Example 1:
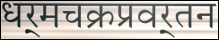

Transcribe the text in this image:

धर्मचक्रप्रवर्तन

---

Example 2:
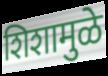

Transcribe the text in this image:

शिशामुळे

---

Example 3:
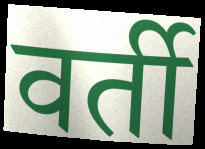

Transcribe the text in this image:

वर्ती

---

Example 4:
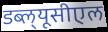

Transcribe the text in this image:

डब्ल्यूसीएल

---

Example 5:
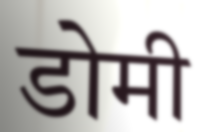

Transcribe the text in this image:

डोमी